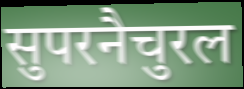
सुपरनैचुरल